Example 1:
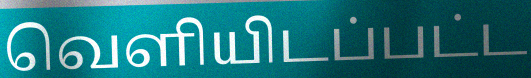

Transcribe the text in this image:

வெளியிடப்பட்ட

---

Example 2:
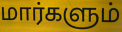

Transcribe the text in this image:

மார்களும்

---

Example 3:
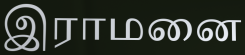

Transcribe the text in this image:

இராமனை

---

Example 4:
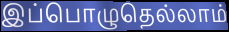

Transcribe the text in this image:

இப்பொழுதெல்லாம்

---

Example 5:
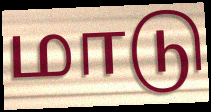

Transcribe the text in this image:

மாடு